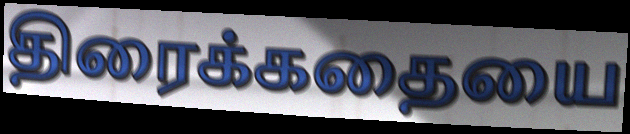
திரைக்கதையை